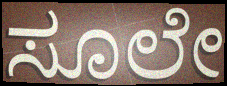
ಸೂಲೇ